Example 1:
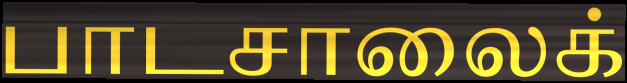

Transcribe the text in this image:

பாடசாலைக்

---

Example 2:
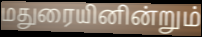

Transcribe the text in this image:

மதுரையினின்றும்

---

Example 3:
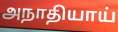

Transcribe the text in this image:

அநாதியாய்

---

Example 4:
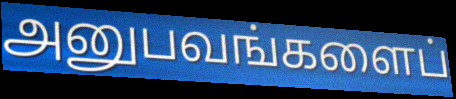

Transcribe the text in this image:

அனுபவங்களைப்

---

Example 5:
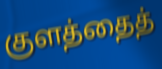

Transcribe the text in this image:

குளத்தைத்